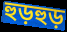
হুড়হুড়